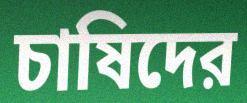
চাষিদের